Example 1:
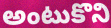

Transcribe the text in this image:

అంటుకొని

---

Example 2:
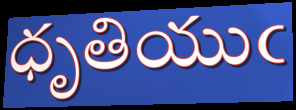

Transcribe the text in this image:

ధృతియుఁ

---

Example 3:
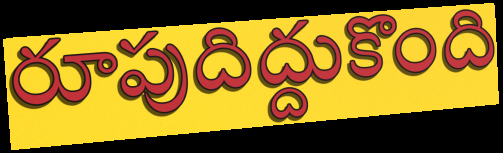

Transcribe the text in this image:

రూపుదిద్దుకొంది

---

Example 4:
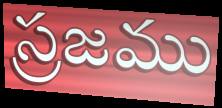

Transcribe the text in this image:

స్రజము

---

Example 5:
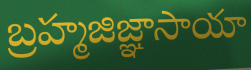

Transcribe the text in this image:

బ్రహ్మజిజ్ఞాసాయా